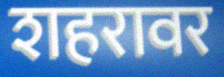
शहरावर